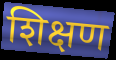
शिक्षण